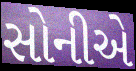
સોનીએ